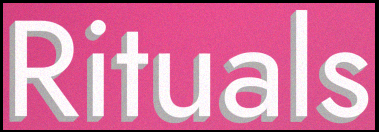
Rituals